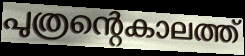
പുത്രന്റെകാലത്ത്